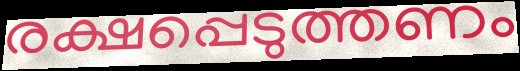
രക്ഷപ്പെടുത്തണം